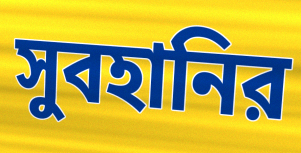
সুবহানির